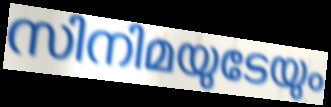
സിനിമയുടേയും